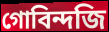
গোবিন্দজি